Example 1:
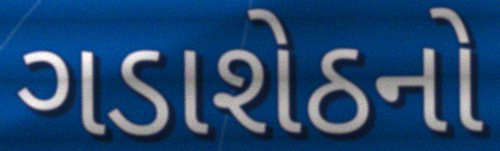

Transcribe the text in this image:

ગડાશેઠનો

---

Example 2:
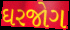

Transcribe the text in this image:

ઘરજોગ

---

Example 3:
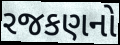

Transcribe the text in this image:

રજકણનો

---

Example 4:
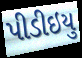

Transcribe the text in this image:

પીડીઇયુ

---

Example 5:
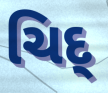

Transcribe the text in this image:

ચિદ્